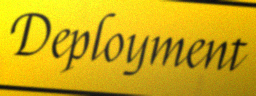
Deployment